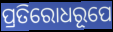
ପ୍ରତିରୋଧରୂପେ